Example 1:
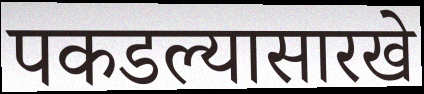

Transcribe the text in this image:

पकडल्यासारखे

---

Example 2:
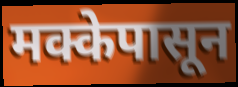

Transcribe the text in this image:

मक्केपासून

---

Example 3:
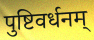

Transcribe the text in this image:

पुष्टिवर्धनम्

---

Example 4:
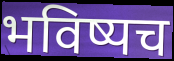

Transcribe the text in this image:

भविष्यच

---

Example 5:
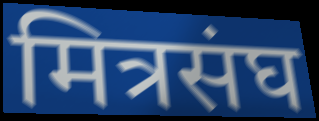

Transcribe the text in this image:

मित्रसंघ